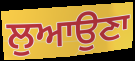
ਲੁਆਉਣਾ